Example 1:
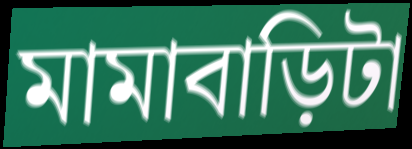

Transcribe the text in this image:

মামাবাড়িটা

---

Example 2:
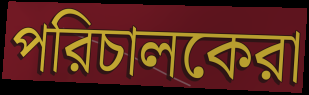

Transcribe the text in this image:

পরিচালকেরা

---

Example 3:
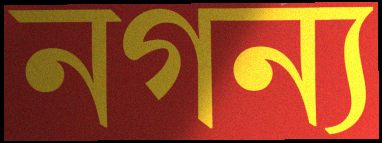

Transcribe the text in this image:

নগন্য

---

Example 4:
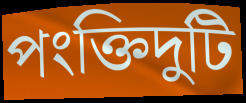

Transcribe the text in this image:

পংক্তিদুটি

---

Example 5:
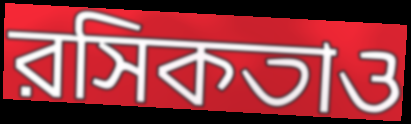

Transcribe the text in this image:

রসিকতাও